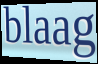
blaag